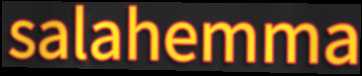
salahemma